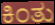
ಕಿಂತು